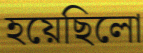
হয়েছিলো